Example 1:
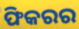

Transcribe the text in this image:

ଫିକରର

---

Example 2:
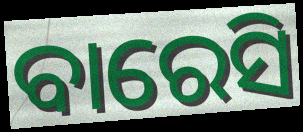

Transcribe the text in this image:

ବାରେସି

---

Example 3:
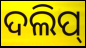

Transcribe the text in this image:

ଦଲିପ୍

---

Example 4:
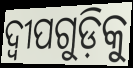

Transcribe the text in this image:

ଦ୍ୱୀପଗୁଡ଼ିକୁ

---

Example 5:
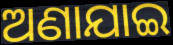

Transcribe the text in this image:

ଅଣାଯାଇ